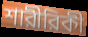
শারীরিকী